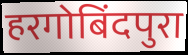
हरगोबिंदपुरा